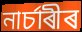
নাৰ্চাৰীৰ